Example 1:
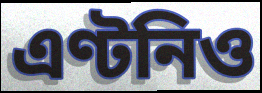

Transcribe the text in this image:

এণ্টনিও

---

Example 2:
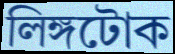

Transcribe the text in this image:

লিঙ্গটোক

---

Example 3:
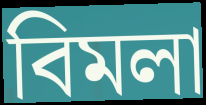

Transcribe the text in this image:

বিমলা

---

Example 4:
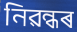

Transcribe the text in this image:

নিৱন্ধৰ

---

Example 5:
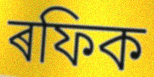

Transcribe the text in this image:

ৰফিক